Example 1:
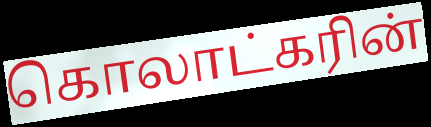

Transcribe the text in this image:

கொலாட்கரின்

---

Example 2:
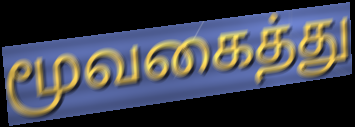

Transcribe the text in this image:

மூவகைத்து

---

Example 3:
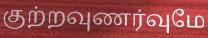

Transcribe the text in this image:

குற்றவுணர்வுமே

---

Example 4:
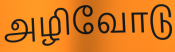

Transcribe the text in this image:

அழிவோடு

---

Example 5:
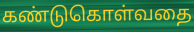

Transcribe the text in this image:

கண்டுகொள்வதை